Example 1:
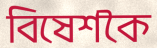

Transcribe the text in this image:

বিষেশকৈ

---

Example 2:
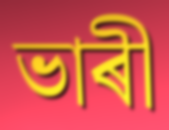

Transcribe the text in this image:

ভাৰী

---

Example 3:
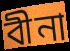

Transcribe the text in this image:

বীনা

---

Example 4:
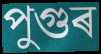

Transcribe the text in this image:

পুগুৰ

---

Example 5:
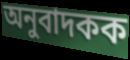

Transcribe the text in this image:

অনুবাদকক